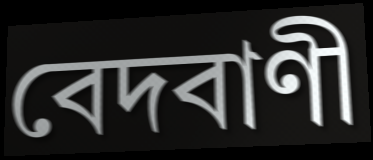
বেদবাণী